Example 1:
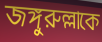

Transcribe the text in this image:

জঙ্গুরুল্লাকে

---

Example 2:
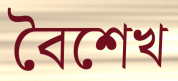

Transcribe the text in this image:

বৈশেখ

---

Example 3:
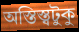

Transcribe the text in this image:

অস্তিস্ত্বটুকু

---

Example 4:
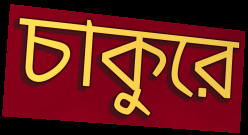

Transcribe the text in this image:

চাকুরে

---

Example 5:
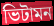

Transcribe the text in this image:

ভিটামন